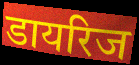
डायरिज